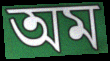
অম